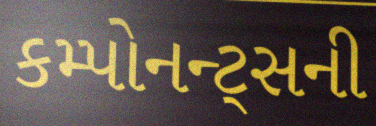
કમ્પોનન્ટ્સની